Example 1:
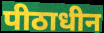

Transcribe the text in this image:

पीठाधीन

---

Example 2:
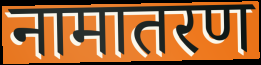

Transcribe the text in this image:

नामातरण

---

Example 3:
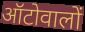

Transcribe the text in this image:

ऑटोवालों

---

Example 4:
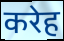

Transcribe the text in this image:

करेह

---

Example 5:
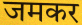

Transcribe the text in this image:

जमकर